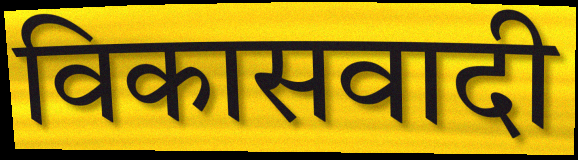
विकासवादी